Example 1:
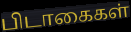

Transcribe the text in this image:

பிடாகைகள்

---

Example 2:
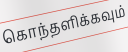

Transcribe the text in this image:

கொந்தளிக்கவும்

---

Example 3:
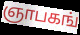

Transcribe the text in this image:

ஞாபகங்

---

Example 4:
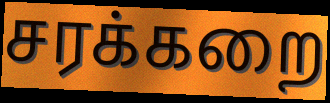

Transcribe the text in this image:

சரக்கறை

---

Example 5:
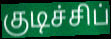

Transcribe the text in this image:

குடிச்சிப்